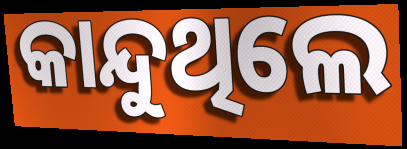
କାନ୍ଦୁଥିଲେ